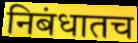
निबंधातच